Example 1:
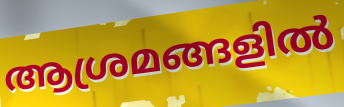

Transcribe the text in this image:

ആശ്രമങ്ങളിൽ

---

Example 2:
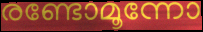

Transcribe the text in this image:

രണ്ടോമൂന്നോ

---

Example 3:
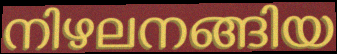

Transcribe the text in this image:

നിഴലനങ്ങിയ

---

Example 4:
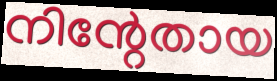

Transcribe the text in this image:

നിന്റേതായ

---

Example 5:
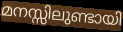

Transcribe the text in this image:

മനസ്സിലുണ്ടായി